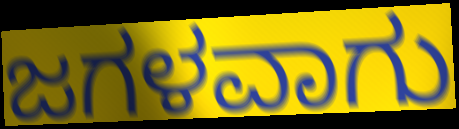
ಜಗಳವಾಗು